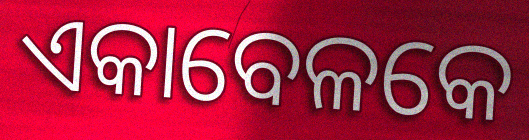
ଏକାବେଳକେ